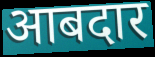
आबदार